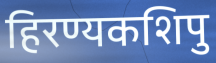
हिरण्यकशिपु